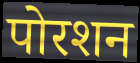
पोरशन